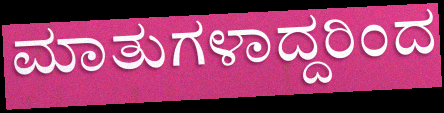
ಮಾತುಗಳಾದ್ದರಿಂದ